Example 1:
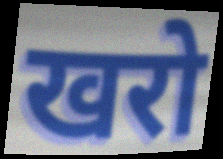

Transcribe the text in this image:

खरो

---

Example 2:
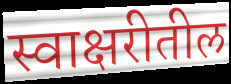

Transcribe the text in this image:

स्वाक्षरीतील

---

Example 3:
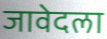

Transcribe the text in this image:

जावेदला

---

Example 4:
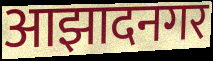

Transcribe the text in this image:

आझादनगर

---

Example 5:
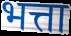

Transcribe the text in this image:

भत्ता